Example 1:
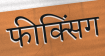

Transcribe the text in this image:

फीक्सिंग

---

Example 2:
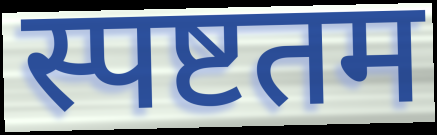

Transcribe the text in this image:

स्पष्टतम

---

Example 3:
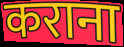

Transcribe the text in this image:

कराना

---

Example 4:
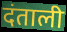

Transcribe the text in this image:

दंताली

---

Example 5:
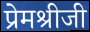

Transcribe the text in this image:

प्रेमश्रीजी